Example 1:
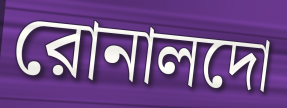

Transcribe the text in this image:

রোনালদো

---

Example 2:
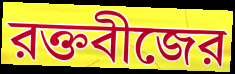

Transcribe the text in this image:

রক্তবীজের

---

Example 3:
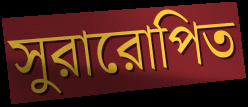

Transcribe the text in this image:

সুরারোপিত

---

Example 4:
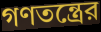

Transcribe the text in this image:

গণতন্ত্রের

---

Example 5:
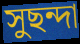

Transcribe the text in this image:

সুছন্দা